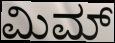
ಮಿಮ್